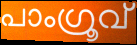
പാംഗ്രൂവ്